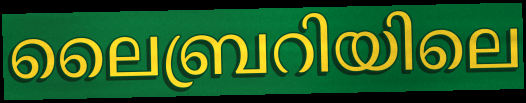
ലൈബ്രറിയിലെ